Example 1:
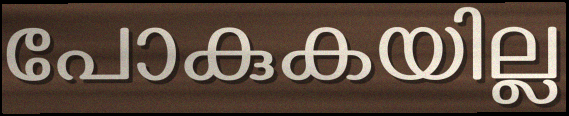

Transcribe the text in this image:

പോകുകയില്ല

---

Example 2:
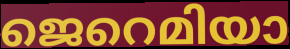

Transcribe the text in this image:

ജെറെമിയാ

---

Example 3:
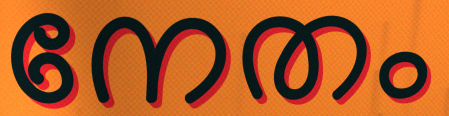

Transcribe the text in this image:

നേതം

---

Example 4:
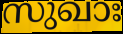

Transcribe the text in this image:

സുഖാഃ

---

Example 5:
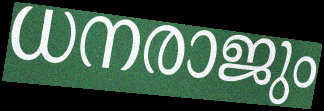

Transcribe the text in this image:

ധനരാജും